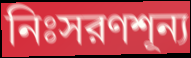
নিঃসরণশূন্য